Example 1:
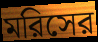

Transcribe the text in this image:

মরিসের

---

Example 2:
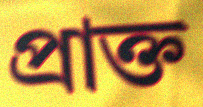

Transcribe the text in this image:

প্রাক্ত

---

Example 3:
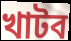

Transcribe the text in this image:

খাটব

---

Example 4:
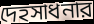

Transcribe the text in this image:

দেহসাধনার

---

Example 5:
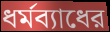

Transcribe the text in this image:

ধর্মব্যাধের